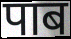
पाब